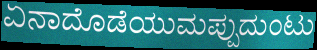
ಏನಾದೊಡೆಯುಮಪ್ಪುದುಂಟು